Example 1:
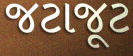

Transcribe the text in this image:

જટાજૂટ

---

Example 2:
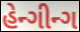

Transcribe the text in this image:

હેન્ગીન્ગ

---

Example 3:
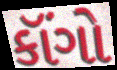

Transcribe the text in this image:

કૉંગો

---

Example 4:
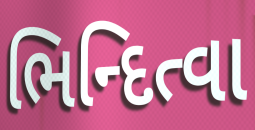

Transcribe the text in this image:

ભિન્દિત્વા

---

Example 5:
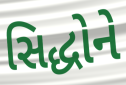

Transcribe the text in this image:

સિદ્ધોને